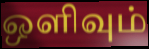
ஒளிவும்